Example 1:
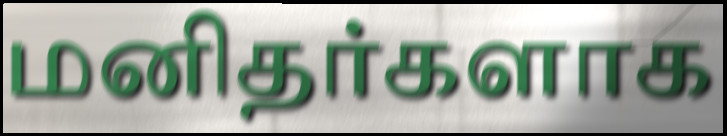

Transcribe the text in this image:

மனிதர்களாக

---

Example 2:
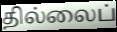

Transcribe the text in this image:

தில்லைப்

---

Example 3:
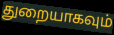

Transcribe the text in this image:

துறையாகவும்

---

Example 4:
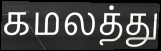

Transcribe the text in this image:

கமலத்து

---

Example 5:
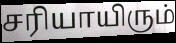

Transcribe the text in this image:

சரியாயிரும்